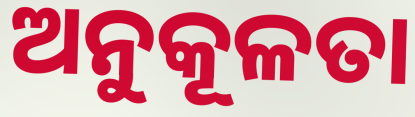
ଅନୁକୂଳତା